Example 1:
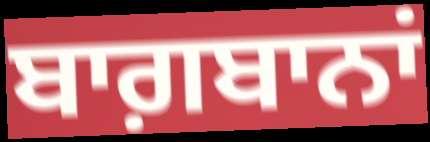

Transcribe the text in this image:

ਬਾਗ਼ਬਾਨਾਂ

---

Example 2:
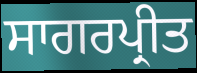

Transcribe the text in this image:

ਸਾਗਰਪ੍ਰੀਤ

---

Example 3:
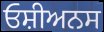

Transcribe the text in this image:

ਓਸ਼ੀਅਨਸ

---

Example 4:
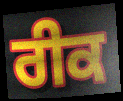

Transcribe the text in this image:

ਰੀਕ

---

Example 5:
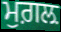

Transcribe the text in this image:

ਮੁਗ਼ਲ਼